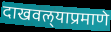
दाखवल्याप्रमाणे